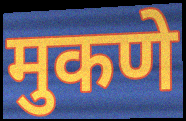
मुकणे